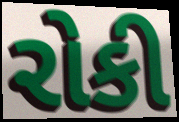
રોકી